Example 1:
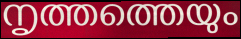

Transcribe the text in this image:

നൃത്തത്തെയും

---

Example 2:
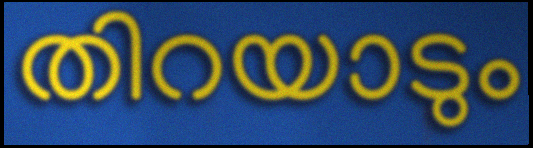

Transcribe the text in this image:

തിറയാടും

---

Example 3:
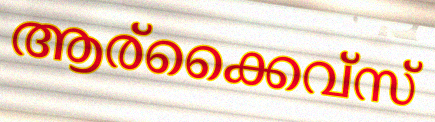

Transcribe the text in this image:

ആര്ക്കൈവ്സ്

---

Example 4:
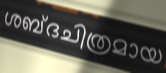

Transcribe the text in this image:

ശബ്ദചിത്രമായ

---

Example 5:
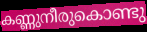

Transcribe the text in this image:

കണ്ണുനീരുകൊണ്ടു